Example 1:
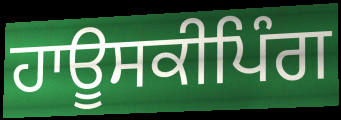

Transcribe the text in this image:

ਹਾਊਸਕੀਪਿੰਗ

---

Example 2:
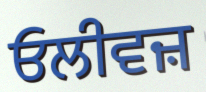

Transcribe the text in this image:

ਓਲੀਵਜ਼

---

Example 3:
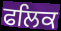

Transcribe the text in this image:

ਫਲਿਕ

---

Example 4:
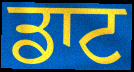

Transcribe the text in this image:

ਡਾਟ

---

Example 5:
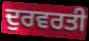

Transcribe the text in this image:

ਦੁਰਵਰਤੀ